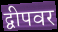
द्वीपवर